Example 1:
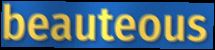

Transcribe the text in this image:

beauteous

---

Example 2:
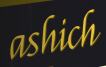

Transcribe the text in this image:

ashich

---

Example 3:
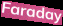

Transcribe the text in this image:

Faraday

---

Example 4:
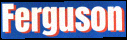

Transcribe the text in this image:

Ferguson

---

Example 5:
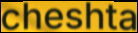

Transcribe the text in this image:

cheshta